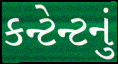
કન્ટેન્ટનું